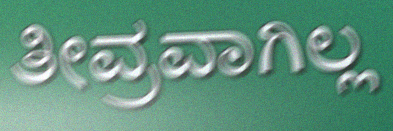
ತೀವ್ರವಾಗಿಲ್ಲ